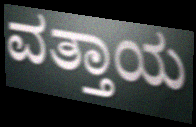
ವತ್ತಾಯ